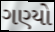
ગણ્યો